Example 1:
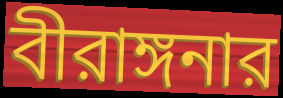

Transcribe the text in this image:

বীরাঙ্গনার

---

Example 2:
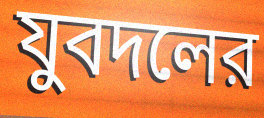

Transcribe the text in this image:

যুবদলের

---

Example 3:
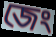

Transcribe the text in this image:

জেং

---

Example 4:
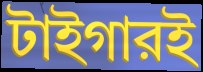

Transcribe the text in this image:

টাইগারই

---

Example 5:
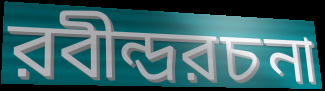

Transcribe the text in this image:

রবীন্দ্ররচনা